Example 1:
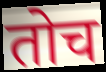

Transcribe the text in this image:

तोच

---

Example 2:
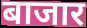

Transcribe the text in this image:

बाजार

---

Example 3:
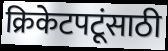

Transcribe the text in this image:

क्रिकेटपटूंसाठी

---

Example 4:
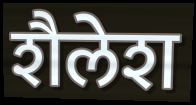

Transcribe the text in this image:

शैलेश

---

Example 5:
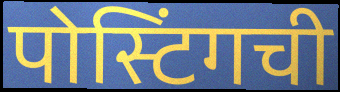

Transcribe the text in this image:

पोस्टिंगची